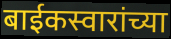
बाईकस्वारांच्या